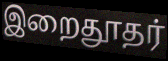
இறைதூதர்